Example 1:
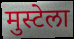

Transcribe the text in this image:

मुस्टेला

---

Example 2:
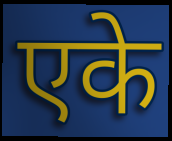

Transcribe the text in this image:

एके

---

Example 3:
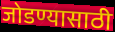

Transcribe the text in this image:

जोडण्यासाठी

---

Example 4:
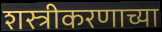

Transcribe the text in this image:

शस्त्रीकरणाच्या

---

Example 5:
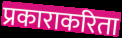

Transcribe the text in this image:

प्रकाराकरिता